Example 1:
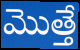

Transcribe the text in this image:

మొత్తే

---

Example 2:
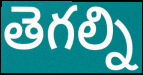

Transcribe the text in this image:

తెగల్ని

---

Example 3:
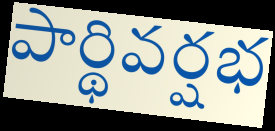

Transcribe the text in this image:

పార్థివర్షభ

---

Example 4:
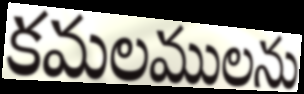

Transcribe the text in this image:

కమలములను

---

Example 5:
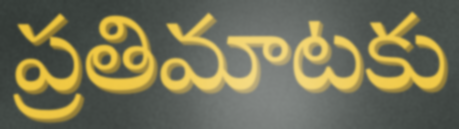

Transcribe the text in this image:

ప్రతిమాటకు